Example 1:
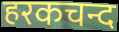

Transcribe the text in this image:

हरकचन्द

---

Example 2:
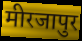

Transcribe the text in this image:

मीरजापुर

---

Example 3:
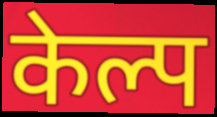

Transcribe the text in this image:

केल्प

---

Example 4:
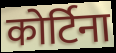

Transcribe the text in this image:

कोर्टिना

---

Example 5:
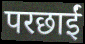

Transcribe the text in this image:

परछाईं